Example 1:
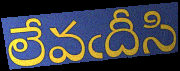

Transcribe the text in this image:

లేవఁదీసి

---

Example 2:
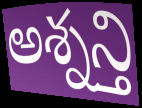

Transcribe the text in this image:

అశ్నన్తి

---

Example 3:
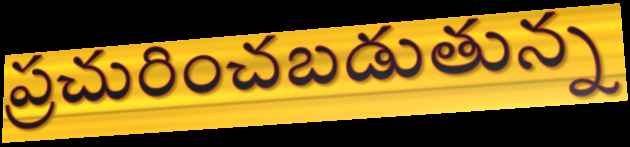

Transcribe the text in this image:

ప్రచురించబడుతున్న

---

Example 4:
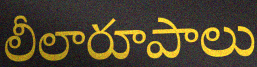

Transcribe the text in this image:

లీలారూపాలు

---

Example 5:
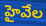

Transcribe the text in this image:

హైవేల